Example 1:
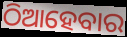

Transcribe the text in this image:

ଠିଆହେବାର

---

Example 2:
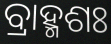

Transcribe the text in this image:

ବ୍ରାହ୍ମଶଃ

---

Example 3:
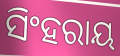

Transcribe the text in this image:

ସିଂହରାୟ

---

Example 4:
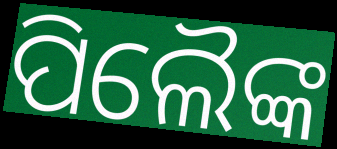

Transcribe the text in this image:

ପିଲୈଙ୍କ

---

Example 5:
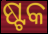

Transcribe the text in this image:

ଷ୍ଟକ